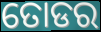
ତୋଡର